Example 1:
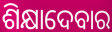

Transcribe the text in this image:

ଶିକ୍ଷାଦେବାର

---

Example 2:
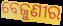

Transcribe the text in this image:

ବେଜୁଣୀର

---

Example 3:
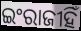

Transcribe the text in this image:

ଇଂରାଜୀହିଁ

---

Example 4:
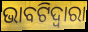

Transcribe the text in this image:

ଭାବଟିଦ୍ୱାରା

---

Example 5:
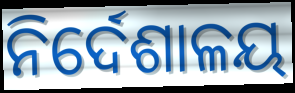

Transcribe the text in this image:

ନିର୍ଦେଶାଳୟ